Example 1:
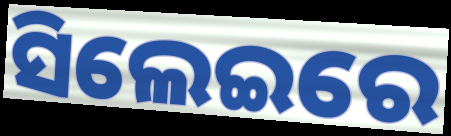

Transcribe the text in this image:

ସିଲେଇରେ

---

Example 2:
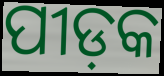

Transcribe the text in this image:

ପୀଡ଼କ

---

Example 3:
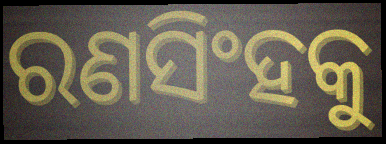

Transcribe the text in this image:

ରଣସିଂହକୁ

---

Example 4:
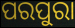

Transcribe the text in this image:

ପରପୁରା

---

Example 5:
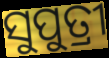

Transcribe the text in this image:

ସୁପୁତ୍ରୀ